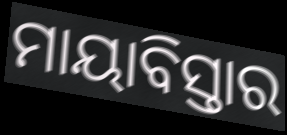
ମାୟାବିସ୍ତାର